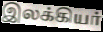
இலக்கியர்